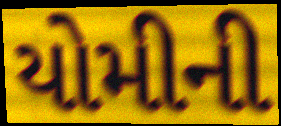
યોમીની